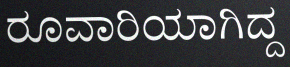
ರೂವಾರಿಯಾಗಿದ್ದ